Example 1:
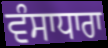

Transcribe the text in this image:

ਵੰਸਾਧਾਰਾ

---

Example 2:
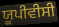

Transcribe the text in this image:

ਯੂਪੀਵੀਸੀ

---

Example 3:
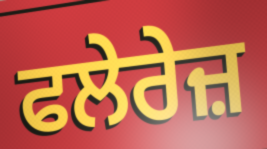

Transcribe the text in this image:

ਫਲੇਰੇਜ਼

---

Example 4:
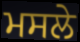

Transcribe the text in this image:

ਮਸਲੇ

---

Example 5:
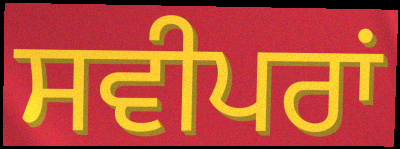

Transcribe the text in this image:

ਸਵੀਪਰਾਂ